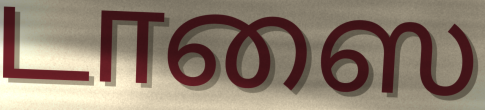
டாஸை